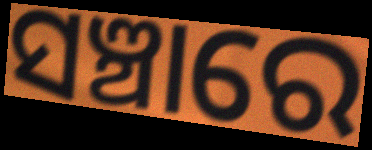
ସଞ୍ଚାରେ